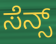
ಸೆನ್ಸ್